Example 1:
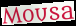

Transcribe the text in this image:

Mousa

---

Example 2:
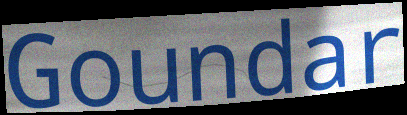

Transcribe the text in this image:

Goundar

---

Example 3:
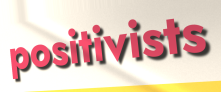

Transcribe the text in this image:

positivists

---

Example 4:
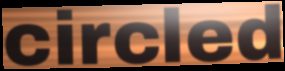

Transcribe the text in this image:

circled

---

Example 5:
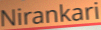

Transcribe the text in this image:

Nirankari